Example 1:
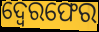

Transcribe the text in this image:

ଦ୍ବେରଫେର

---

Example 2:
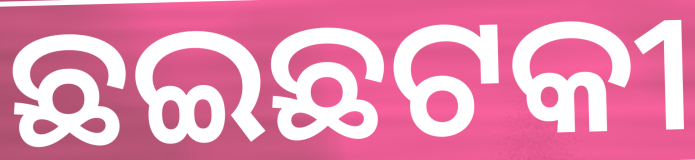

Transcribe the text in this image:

ଛଇଛଟକୀ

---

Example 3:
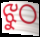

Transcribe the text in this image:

ଝୁଠ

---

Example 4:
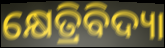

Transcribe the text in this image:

କ୍ଷେତ୍ରିବିଦ୍ୟା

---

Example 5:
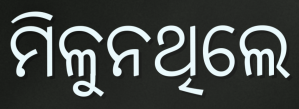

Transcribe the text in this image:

ମିଳୁନଥିଲେ